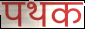
पथक